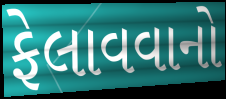
ફેલાવવાનો